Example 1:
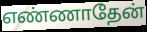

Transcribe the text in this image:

எண்ணாதேன்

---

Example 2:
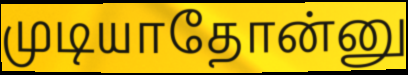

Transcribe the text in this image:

முடியாதோன்னு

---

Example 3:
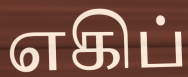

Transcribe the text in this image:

எகிப்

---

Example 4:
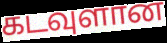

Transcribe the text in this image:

கடவுளான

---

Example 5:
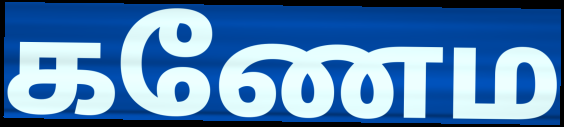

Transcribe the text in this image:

கணேம